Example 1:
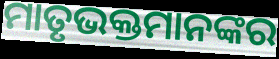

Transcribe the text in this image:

ମାତୃଭକ୍ତମାନଙ୍କର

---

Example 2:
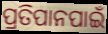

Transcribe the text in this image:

ପ୍ରତିପାନପାଇଁ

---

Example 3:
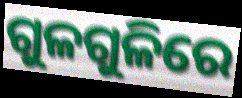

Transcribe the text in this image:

ଗୁଳଗୁଳିରେ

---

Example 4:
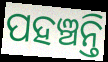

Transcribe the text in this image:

ପହଞ୍ଚନ୍ତି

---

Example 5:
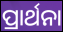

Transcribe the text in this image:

ପ୍ରାର୍ଥନା